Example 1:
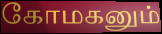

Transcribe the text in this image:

கோமகனும்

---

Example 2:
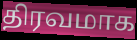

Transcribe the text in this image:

திரவமாக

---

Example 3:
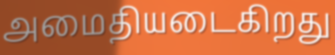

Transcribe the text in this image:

அமைதியடைகிறது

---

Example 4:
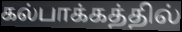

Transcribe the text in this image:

கல்பாக்கத்தில்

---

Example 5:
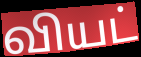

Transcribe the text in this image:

வியட்